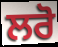
ਲਰੋ